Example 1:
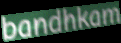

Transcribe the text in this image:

bandhkam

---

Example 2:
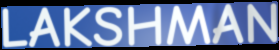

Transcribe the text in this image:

LAKSHMAN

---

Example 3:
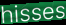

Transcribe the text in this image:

hisses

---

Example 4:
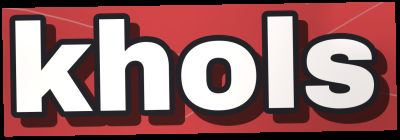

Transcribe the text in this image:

khols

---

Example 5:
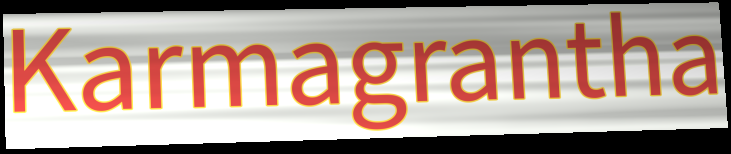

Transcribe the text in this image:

Karmagrantha